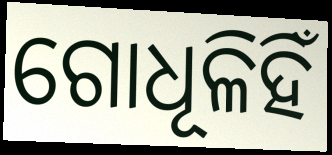
ଗୋଧୂଳିହିଁ